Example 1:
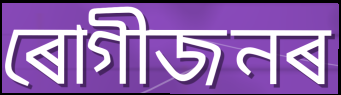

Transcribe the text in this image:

ৰোগীজনৰ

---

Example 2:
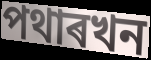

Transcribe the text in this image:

পথাৰখন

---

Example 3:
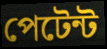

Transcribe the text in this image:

পেটেন্ট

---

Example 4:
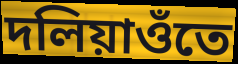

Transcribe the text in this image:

দলিয়াওঁতে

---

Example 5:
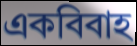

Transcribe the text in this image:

একবিবাহ